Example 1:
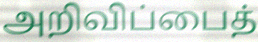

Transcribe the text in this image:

அறிவிப்பைத்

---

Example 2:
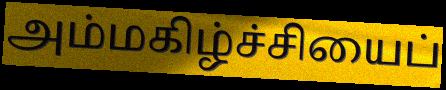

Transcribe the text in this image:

அம்மகிழ்ச்சியைப்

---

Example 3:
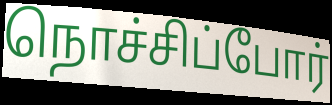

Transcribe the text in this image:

நொச்சிப்போர்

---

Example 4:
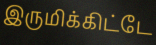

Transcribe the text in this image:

இருமிக்கிட்டே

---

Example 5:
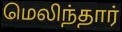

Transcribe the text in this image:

மெலிந்தார்